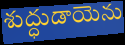
శుద్ధుడాయెను